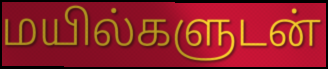
மயில்களுடன்